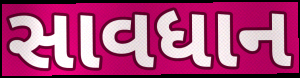
સાવધાન